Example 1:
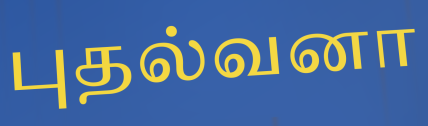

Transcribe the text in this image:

புதல்வனா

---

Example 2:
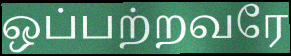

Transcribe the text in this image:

ஒப்பற்றவரே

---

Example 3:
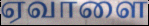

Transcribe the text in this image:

ஏவாளை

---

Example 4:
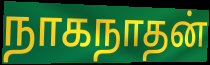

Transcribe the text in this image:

நாகநாதன்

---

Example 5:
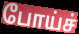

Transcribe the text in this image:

போய்ச்